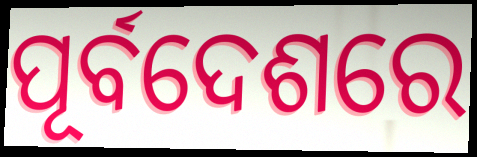
ପୂର୍ବଦେଶରେ